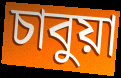
চাবুয়া